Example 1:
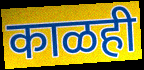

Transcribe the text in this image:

काळही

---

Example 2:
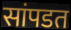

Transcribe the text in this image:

सांपडत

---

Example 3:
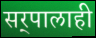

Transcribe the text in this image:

सर्पालाही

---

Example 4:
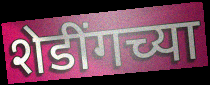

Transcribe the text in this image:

शेडींगच्या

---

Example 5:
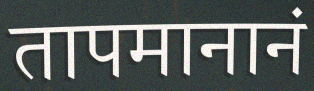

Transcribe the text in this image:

तापमानानं